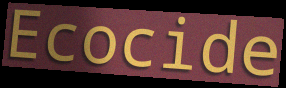
Ecocide